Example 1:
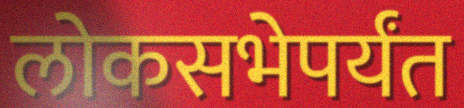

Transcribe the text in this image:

लोकसभेपर्यंत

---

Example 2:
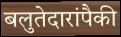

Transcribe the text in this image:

बलुतेदारांपैकी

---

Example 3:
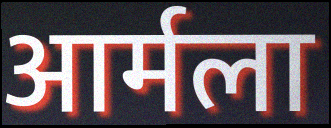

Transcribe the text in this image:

आर्मला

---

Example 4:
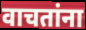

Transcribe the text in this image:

वाचतांना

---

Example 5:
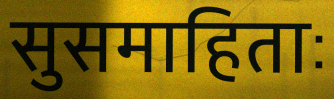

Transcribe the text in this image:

सुसमाहिताः